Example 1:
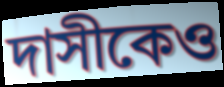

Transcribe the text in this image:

দাসীকেও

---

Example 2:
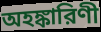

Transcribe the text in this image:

অহঙ্কারিণী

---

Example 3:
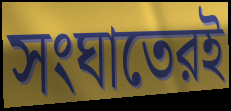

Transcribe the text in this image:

সংঘাতেরই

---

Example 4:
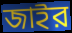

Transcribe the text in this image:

জাইর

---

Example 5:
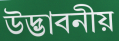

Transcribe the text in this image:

উদ্ভাবনীয়